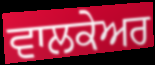
ਵਾਲਕੇਅਰ